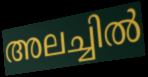
അലച്ചിൽ